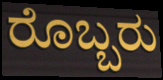
ರೊಬ್ಬರು